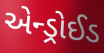
એન્ડ્રોઈડ